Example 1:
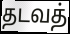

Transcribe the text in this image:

தடவத்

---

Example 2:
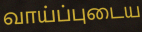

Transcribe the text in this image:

வாய்ப்புடைய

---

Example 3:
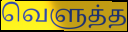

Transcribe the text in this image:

வெளுத்த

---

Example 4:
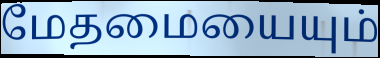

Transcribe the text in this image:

மேதமையையும்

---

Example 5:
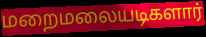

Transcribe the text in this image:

மறைமலையடிகளார்